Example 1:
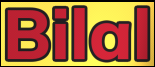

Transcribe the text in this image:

Bilal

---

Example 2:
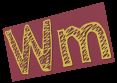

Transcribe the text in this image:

Wm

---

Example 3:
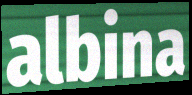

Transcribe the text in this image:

albina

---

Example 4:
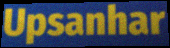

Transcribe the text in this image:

Upsanhar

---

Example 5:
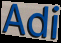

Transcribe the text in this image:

Adi